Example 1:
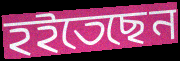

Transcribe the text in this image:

হইতেছেন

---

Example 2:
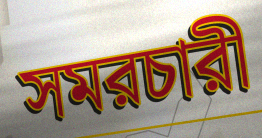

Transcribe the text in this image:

সমরচারী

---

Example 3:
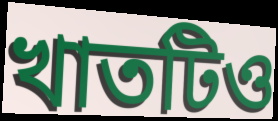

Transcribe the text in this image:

খাতটিও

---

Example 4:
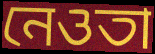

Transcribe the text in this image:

নেওতা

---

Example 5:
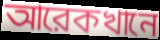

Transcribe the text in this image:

আরেকখানে